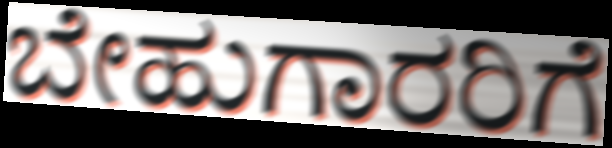
ಬೇಹುಗಾರರಿಗೆ